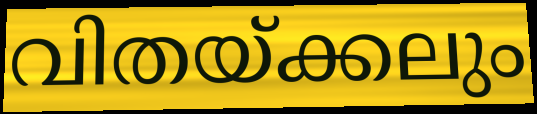
വിതയ്ക്കലും